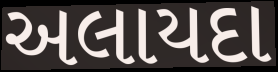
અલાયદા